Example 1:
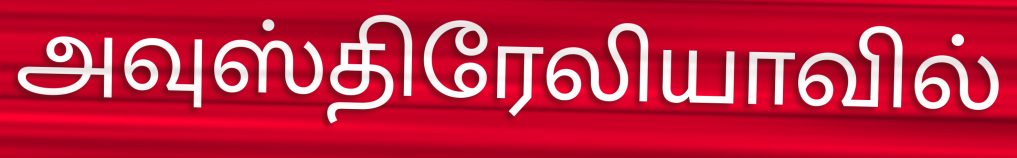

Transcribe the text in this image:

அவுஸ்திரேலியாவில்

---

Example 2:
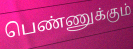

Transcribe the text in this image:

பெண்ணுக்கும்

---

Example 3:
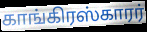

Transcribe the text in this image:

காங்கிரஸ்காரர்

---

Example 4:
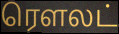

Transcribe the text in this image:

ரௌலட்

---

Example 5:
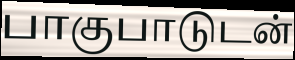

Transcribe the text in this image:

பாகுபாடுடன்